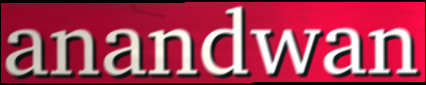
anandwan